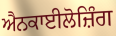
ਐਨਕਾਈਲੋਜ਼ਿੰਗ